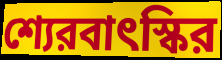
শ্যেরবাৎস্কির